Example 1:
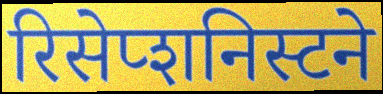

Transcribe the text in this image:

रिसेप्शनिस्टने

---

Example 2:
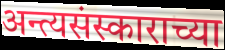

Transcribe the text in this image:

अन्त्यसंस्काराच्या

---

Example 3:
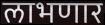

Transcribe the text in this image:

लाभणार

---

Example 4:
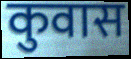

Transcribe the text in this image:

कुवास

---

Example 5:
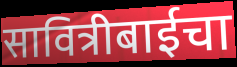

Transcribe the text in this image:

सावित्रीबाईचा